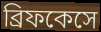
ব্রিফকেসে